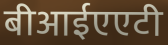
बीआईएएटी